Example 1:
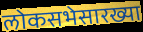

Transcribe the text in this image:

लोकसभेसारख्या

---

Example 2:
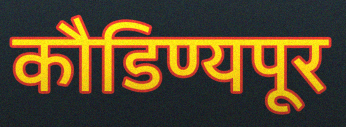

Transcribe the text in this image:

कौडिण्यपूर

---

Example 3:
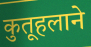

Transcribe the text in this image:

कुतूहलाने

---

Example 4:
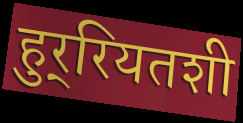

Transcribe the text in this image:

हुर्रियतशी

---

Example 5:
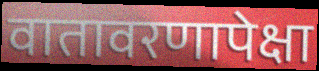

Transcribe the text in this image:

वातावरणापेक्षा